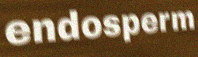
endosperm